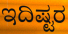
ಇದಿಷ್ಟರ